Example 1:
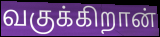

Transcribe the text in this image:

வகுக்கிறான்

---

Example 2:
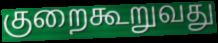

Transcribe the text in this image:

குறைகூறுவது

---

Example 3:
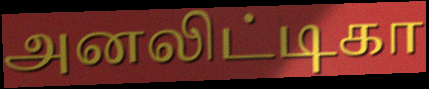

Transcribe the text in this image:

அனலிட்டிகா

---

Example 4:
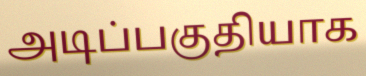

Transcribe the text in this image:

அடிப்பகுதியாக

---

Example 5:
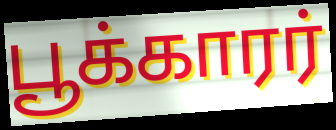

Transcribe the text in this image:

பூக்காரர்